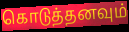
கொடுத்தனவும்